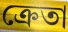
ক্ৰেতা